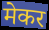
मेकर